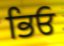
ਭਿਓ